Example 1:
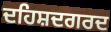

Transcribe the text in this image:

ਦਹਿਸ਼ਦਗਰਦ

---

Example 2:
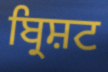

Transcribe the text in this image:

ਬ੍ਰਿਸ਼ਟ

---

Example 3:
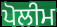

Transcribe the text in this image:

ਪੋਲੀਮ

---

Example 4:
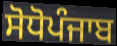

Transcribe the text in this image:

ਸੋਧੋਪੰਜਾਬ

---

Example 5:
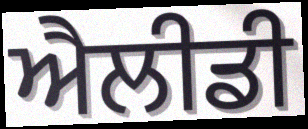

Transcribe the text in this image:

ਐਲੀਡੀ